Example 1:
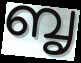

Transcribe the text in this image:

ബൃ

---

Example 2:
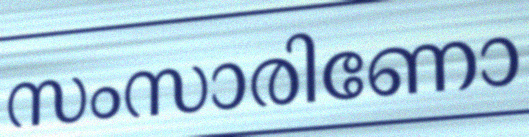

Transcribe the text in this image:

സംസാരിണോ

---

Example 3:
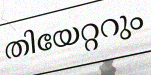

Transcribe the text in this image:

തിയേറ്ററും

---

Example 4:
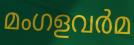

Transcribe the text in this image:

മംഗളവർമ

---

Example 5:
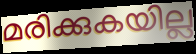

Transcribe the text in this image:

മരിക്കുകയില്ല